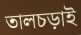
তালচড়াই